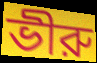
ভীৰু